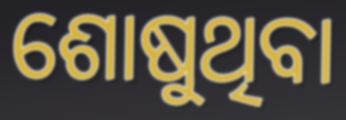
ଶୋଷୁଥିବା